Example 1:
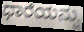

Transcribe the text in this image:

ಧಾರೆಯನ್ನು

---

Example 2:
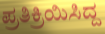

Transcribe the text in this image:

ಪ್ರತಿಕ್ರಿಯಿಸಿದ್ದ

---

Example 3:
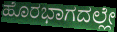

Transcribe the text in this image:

ಹೊರಭಾಗದಲ್ಲೇ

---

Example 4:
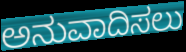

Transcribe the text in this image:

ಅನುವಾದಿಸಲು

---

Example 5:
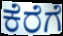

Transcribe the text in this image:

ಕೆರೆಗೆ